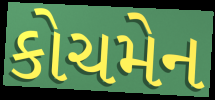
કોચમેન